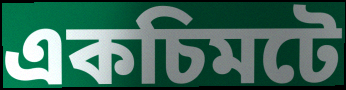
একচিমটে